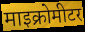
माइक्रोमीटर